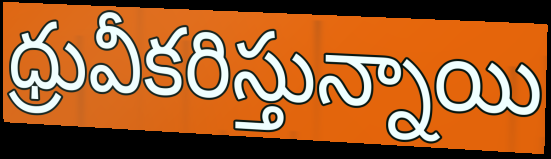
ధ్రువీకరిస్తున్నాయి